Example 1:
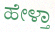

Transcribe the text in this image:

ಹೇಳ್ತಾ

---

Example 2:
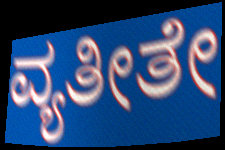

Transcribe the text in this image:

ವ್ಯತೀತೇ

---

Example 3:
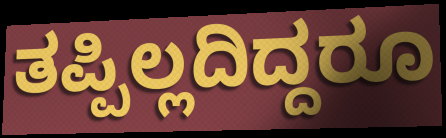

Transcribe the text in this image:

ತಪ್ಪಿಲ್ಲದಿದ್ದರೂ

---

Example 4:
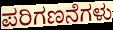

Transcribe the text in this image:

ಪರಿಗಣನೆಗಳು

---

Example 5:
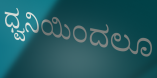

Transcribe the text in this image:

ಧ್ವನಿಯಿಂದಲೂ